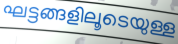
ഘട്ടങ്ങളിലൂടെയുള്ള